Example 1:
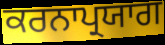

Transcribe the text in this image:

ਕਰਨਾਪ੍ਰਯਾਗ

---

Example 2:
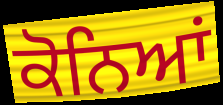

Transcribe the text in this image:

ਕੋਨਿਆਂ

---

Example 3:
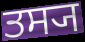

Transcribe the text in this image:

ਤਸ੍ਯ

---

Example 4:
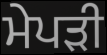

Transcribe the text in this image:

ਮੇਪੜੀ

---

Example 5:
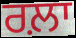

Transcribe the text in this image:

ਰਲ਼ਾ